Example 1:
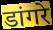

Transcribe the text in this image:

डांगरे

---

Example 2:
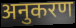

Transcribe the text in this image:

अनुकरण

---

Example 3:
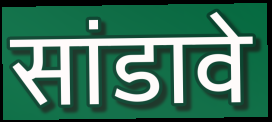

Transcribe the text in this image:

सांडावे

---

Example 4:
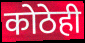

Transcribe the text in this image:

कोठेही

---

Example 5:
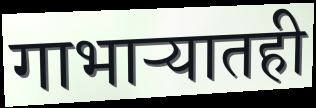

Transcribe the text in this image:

गाभाऱ्यातही